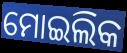
ମୋଇଲିକ